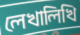
লেখালিখি